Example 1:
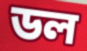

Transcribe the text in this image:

ডল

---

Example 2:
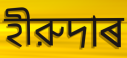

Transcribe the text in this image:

হীৰুদাৰ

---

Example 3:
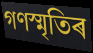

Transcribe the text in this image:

গণস্মৃতিৰ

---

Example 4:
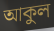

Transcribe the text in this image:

আকুল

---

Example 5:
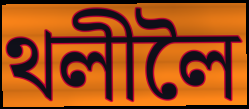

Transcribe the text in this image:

থলীলৈ